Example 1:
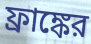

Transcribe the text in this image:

ফ্রাঙ্কের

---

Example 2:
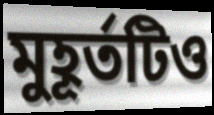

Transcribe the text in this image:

মুহূর্তটিও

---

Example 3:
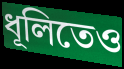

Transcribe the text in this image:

ধূলিতেও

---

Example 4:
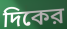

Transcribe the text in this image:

দিকের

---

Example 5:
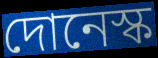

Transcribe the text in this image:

দোনেস্ক